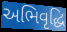
અભિવૃદ્ધિ